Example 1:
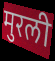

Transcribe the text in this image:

मुरली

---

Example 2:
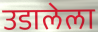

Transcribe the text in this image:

उडालेला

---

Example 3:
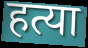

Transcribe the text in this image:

हत्या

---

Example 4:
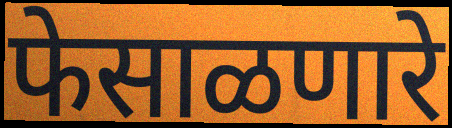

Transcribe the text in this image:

फेसाळणारे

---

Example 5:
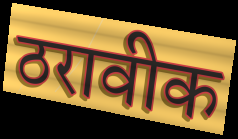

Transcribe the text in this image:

ठरावीक